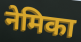
नेमिका